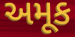
અમૂક